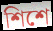
শিশে